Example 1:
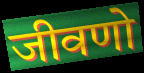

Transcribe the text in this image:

जीवणो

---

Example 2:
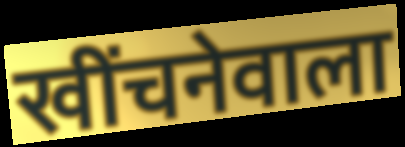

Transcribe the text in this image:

खींचनेवाला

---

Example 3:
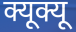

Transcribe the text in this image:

क्यूक्यू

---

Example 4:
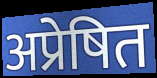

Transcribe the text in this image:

अप्रेषित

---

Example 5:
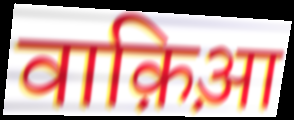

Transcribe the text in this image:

वाक़िआ़